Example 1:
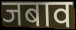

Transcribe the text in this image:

जबाव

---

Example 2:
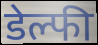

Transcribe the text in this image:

डेल्फी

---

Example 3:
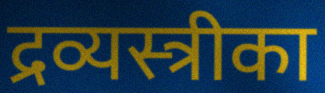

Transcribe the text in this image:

द्रव्यस्त्रीका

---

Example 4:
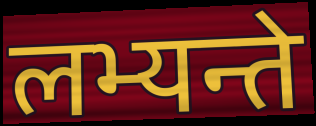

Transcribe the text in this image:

लभ्यन्ते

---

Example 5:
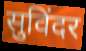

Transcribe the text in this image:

सुविंदर